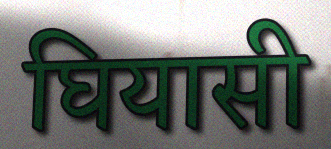
घियासी